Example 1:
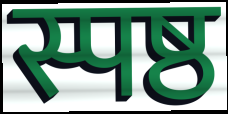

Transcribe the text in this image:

स्पष्ठ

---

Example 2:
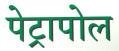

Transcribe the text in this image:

पेट्रापोल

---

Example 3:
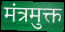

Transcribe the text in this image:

मंत्रमुक्त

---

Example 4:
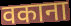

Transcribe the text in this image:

वकाना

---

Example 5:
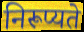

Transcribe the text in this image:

निरूप्यते